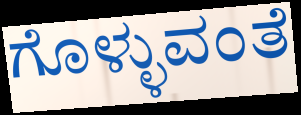
ಗೊಳ್ಳುವಂತೆ